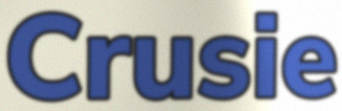
Crusie